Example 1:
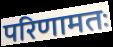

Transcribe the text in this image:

परिणामतः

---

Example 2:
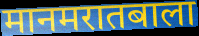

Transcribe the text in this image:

मानमरातबाला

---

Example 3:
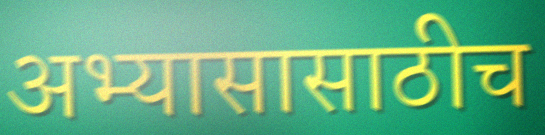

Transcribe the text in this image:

अभ्यासासाठीच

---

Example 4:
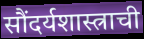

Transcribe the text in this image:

सौंदर्यशास्त्राची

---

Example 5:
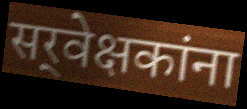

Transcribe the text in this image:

सर्वेक्षकांना